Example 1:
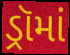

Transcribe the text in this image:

ડ્રૉમાં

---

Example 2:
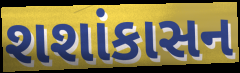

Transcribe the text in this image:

શશાંકાસન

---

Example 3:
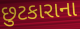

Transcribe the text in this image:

છુટકારાના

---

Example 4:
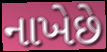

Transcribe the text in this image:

નાખેછે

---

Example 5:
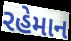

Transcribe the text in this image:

રહેમાન